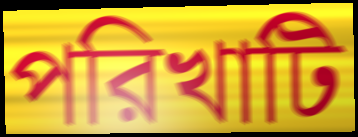
পরিখাটি